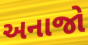
અનાજો